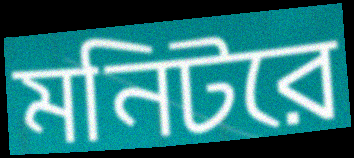
মনিটরে